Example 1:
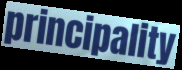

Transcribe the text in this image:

principality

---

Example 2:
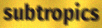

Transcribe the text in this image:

subtropics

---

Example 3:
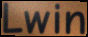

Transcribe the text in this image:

Lwin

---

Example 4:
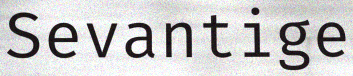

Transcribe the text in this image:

Sevantige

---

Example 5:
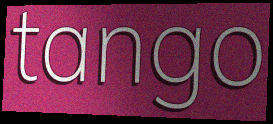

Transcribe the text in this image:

tango